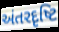
અંતરદૃષ્ટિ